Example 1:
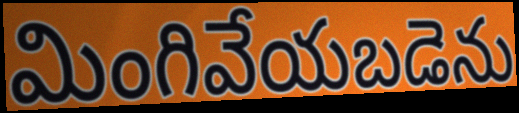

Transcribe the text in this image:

మింగివేయబడెను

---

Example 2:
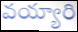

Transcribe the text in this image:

వయ్యారి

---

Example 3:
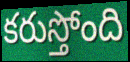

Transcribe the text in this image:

కరుస్తోంది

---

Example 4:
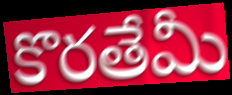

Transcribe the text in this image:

కొరతేమీ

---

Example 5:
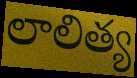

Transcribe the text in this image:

లాలిత్య